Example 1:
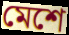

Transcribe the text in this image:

মেশে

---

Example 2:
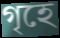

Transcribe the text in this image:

গৃহে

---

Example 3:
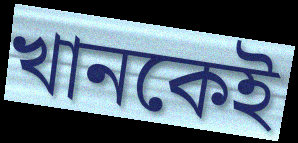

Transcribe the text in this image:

খানকেই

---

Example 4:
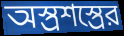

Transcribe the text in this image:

অস্ত্রশস্ত্রের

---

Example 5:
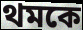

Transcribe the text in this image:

থমকে